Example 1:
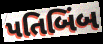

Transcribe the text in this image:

પતિબિંબ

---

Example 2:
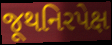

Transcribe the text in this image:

જૂથનિરપેક્ષ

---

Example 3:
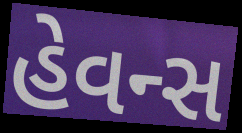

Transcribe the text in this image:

હેવન્સ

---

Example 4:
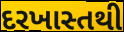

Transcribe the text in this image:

દરખાસ્તથી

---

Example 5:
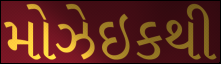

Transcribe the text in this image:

મોઝેઇકથી